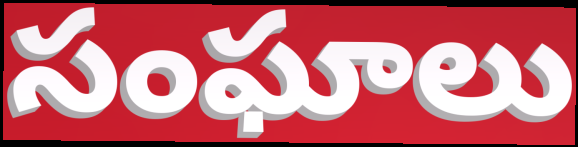
సంఘాలు